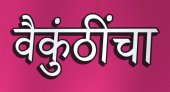
वैकुंठींचा